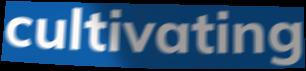
cultivating